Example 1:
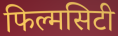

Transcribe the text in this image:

फिल्मसिटी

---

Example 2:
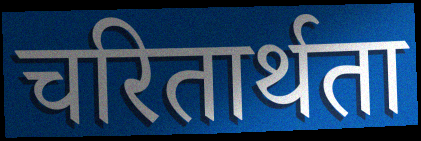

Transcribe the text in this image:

चरितार्थता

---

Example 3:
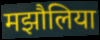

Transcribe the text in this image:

मझौलिया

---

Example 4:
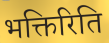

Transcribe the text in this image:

भक्तिरिति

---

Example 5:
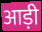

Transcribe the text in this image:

आड़ी